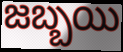
జబ్బయి